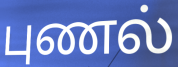
புணல்